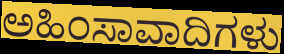
ಅಹಿಂಸಾವಾದಿಗಳು